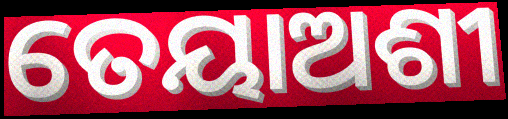
ତେୟାଅଶୀ